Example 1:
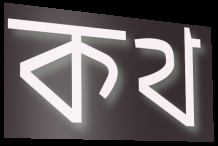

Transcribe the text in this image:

কথ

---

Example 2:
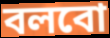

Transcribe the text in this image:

বলবো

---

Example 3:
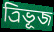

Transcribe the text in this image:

ত্ৰিভূজ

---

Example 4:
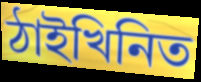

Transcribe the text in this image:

ঠাইখিনিত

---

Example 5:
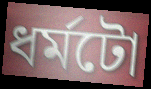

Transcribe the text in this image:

ধৰ্মটো